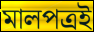
মালপত্রই